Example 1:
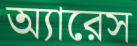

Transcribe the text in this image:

অ্যারেস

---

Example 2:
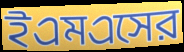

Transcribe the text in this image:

ইএমএসের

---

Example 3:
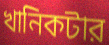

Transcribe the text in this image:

খানিকটার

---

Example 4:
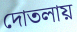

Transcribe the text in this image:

দোতলায়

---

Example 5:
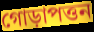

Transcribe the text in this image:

গোড়াপত্তন